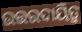
ଉତ୍ତରଦାୟିତ୍ବ